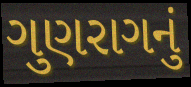
ગુણરાગનું